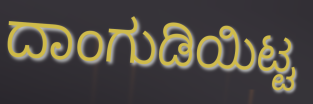
ದಾಂಗುಡಿಯಿಟ್ಟ